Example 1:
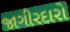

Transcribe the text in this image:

જાગીરદારો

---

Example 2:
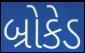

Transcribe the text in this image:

બ્રોકેડ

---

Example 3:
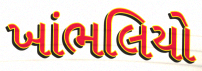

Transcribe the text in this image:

ખાંભલિયો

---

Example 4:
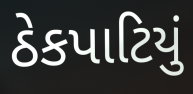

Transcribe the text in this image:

ઠેકપાટિયું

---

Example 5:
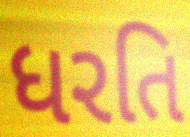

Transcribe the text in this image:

ધરતિ